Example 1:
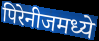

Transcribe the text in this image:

पिरेनीजमध्ये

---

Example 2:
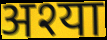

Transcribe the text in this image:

अश्या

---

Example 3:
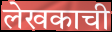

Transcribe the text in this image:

लेखकाची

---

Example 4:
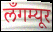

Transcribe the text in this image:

लँगम्यूर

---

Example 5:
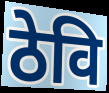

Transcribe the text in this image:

ठेवि